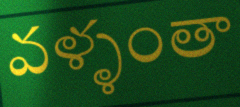
వళ్ళంతా